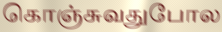
கொஞ்சுவதுபோல